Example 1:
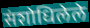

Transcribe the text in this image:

संशोधिलेले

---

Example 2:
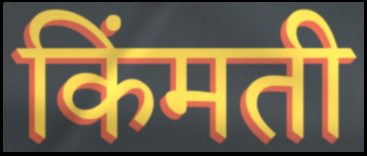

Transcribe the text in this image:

किंमती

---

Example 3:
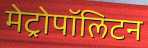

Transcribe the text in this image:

मेट्रोपॉलिटन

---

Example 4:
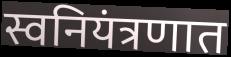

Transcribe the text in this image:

स्वनियंत्रणात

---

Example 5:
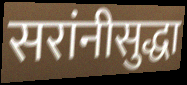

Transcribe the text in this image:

सरांनीसुद्धा